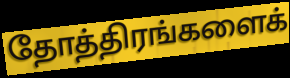
தோத்திரங்களைக்